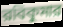
রবিকুমার